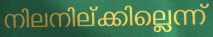
നിലനില്ക്കില്ലെന്ന്